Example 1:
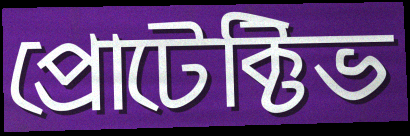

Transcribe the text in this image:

প্রোটেক্টিভ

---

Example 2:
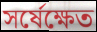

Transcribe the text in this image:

সর্ষেক্ষেত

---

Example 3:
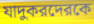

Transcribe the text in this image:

যাদুকরদেরকে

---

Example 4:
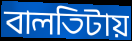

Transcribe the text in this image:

বালতিটায়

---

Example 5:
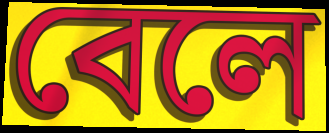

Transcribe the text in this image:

বেলে